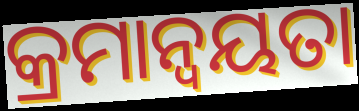
କ୍ରମାନ୍ବୟତା